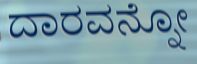
ದಾರವನ್ನೋ